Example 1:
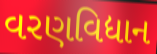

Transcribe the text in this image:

વરણવિદ્યાન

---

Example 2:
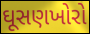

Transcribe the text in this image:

ઘૂસણખોરો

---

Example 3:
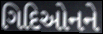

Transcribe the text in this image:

ગિદિઓનને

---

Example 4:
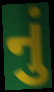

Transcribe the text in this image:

નું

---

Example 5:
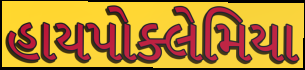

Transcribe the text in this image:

હાયપોક્લેમિયા